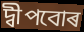
দ্বীপবোৰ